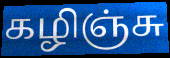
கழிஞ்சு